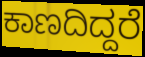
ಕಾಣದಿದ್ದರೆ